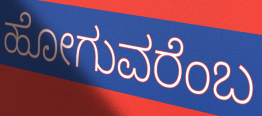
ಹೋಗುವರೆಂಬ